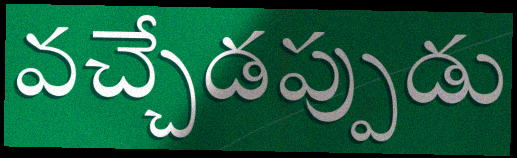
వచ్చేడప్పుడు